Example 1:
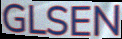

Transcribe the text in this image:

GLSEN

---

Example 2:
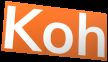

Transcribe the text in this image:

Koh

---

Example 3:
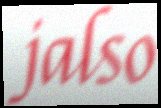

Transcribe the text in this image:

jalso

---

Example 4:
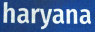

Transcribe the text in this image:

haryana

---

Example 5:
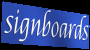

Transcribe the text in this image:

signboards